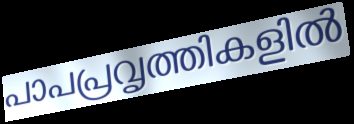
പാപപ്രവൃത്തികളിൽ